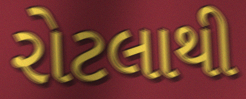
રોટલાથી